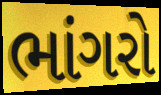
ભાંગરો